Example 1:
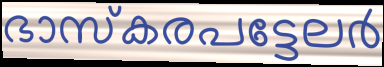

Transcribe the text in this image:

ഭാസ്കരപട്ടേലർ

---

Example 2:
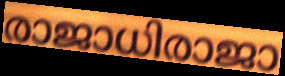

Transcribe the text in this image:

രാജാധിരാജാ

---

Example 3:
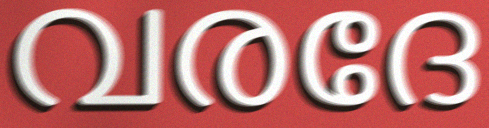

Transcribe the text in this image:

വരദേ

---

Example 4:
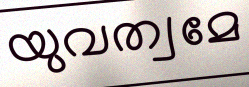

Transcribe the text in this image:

യുവത്വമേ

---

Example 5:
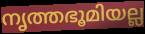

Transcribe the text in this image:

നൃത്തഭൂമിയല്ല